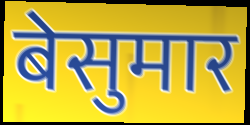
बेसुमार